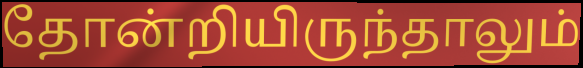
தோன்றியிருந்தாலும்